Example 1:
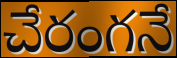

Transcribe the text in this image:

చేరంగనే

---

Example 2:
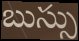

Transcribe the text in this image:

బుస్సు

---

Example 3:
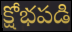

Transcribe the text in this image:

క్షోభపడి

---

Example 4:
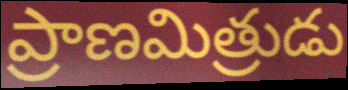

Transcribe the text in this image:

ప్రాణమిత్రుడు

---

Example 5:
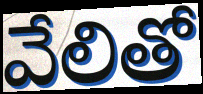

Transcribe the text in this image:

వేలితో